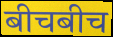
बीचबीच